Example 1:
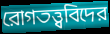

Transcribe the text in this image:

রোগতত্ত্ববিদের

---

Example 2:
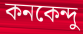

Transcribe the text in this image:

কনকেন্দু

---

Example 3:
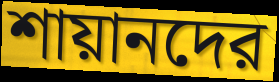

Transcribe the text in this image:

শায়ানদের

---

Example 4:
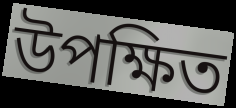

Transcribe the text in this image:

উপক্ষিত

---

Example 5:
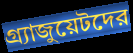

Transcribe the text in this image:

গ্র্যাজুয়েটদের